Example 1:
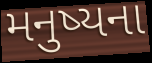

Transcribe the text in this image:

મનુષ્યના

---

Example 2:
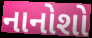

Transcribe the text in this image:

નાનોશો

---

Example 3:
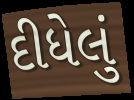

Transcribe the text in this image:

દીધેલું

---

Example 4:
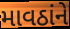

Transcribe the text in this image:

માવઠાંને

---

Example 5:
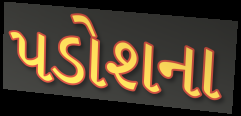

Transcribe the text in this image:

પડોશના